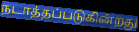
நடாத்தப்படுகின்றது